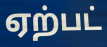
ஏற்பட்